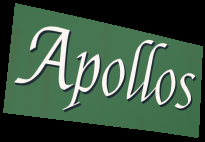
Apollos